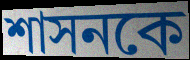
শাসনকে